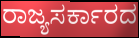
ರಾಜ್ಯಸರ್ಕಾರದ